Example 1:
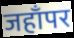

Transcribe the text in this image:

जहाँपर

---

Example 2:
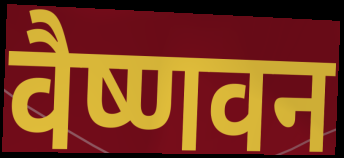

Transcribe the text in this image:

वैष्णवन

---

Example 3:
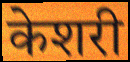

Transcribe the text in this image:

केशरी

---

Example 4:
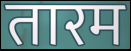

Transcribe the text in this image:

तारम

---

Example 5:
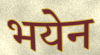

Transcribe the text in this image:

भयेन